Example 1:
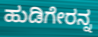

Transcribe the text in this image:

ಹುಡಿಗೇರನ್ನ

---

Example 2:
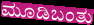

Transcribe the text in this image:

ಮೂಡಿಬಂತು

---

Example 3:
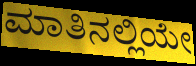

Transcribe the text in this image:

ಮಾತಿನಲ್ಲಿಯೇ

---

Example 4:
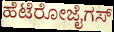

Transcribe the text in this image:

ಹೆಟೆರೋಜೈಗಸ್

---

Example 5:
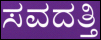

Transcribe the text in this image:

ಸವದತ್ತಿ